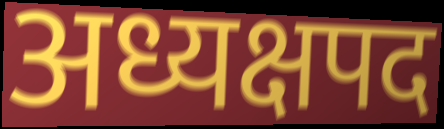
अध्यक्षपद